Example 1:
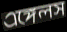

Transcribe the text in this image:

এঙ্গেলস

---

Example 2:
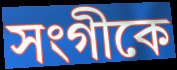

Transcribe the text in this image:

সংগীকে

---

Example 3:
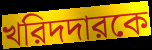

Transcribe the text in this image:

খরিদদারকে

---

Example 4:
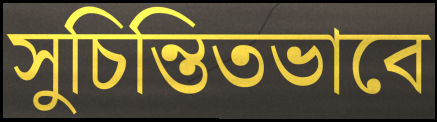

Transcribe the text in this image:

সুচিন্তিতভাবে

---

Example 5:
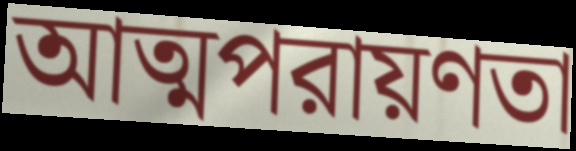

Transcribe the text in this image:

আত্মপরায়ণতা